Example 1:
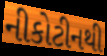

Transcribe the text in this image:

નીકોટીનથી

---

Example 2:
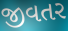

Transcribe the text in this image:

જીવતર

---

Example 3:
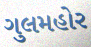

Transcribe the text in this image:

ગુલમહોર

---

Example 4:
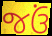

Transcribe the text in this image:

જઉં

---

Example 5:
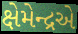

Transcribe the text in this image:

ક્ષેમેન્દ્રએ